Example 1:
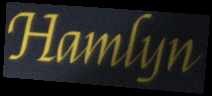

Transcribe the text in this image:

Hamlyn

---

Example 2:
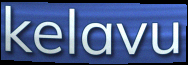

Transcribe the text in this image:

kelavu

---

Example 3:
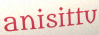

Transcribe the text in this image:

anisittu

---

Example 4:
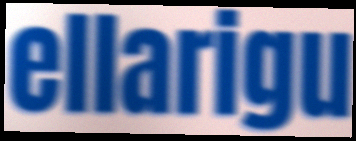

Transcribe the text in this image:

ellarigu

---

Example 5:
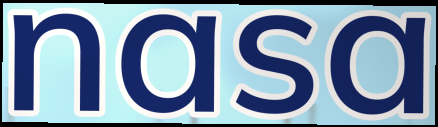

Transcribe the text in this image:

nasa